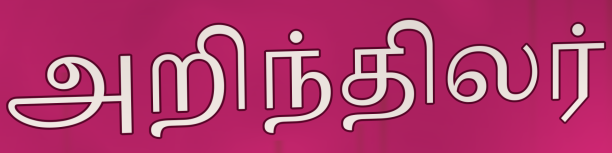
அறிந்திலர்